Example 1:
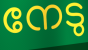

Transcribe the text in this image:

നേടു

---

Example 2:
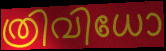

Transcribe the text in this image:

ത്രിവിധോ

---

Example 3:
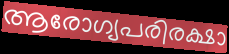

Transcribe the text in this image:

ആരോഗ്യപരിരക്ഷാ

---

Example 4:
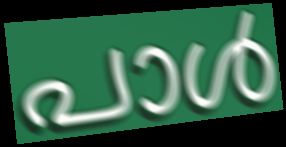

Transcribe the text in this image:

പാൾ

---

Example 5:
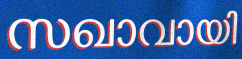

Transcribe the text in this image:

സഖാവായി